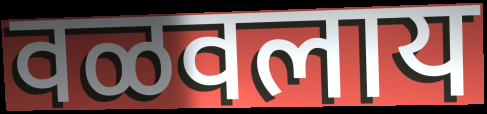
वळवलाय